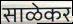
साळेकर